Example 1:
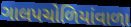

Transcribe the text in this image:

ગાલપચોળિયાંવાળા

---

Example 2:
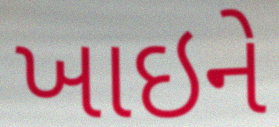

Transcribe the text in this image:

ખાઇને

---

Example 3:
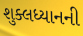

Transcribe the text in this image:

શુક્લધ્યાનની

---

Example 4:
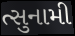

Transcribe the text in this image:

ત્સુનામી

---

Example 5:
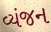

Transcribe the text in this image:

વ્યંજન